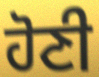
ਹੋਣੀ